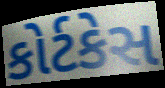
કોર્ટકેસ